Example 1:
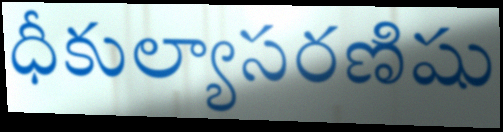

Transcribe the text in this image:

ధీకుల్యాసరణిషు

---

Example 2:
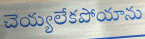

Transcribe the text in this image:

చెయ్యలేకపోయాను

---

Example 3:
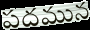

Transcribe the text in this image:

పదమున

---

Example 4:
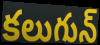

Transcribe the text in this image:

కలుగున్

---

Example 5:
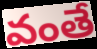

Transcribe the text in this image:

వంతే